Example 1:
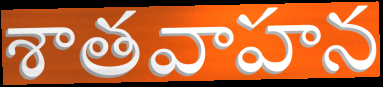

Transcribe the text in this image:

శాతవాహన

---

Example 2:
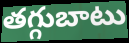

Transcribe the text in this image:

తగ్గుబాటు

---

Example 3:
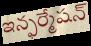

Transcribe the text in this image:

ఇన్ఫర్మేషన్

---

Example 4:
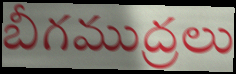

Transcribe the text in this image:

బీగముద్రలు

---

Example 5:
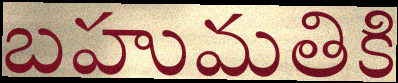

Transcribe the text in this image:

బహుమతికి